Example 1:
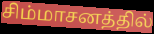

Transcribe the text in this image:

சிம்மாசனத்தில்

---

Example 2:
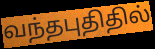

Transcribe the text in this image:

வந்தபுதிதில்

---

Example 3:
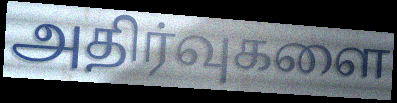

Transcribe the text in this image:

அதிர்வுகளை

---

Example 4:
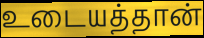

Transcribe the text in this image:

உடையத்தான்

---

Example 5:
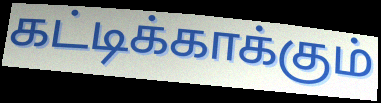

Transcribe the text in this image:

கட்டிக்காக்கும்